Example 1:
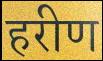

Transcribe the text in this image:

हरीण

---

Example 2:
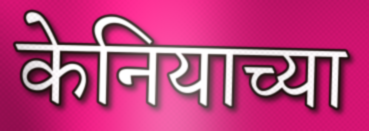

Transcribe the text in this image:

केनियाच्या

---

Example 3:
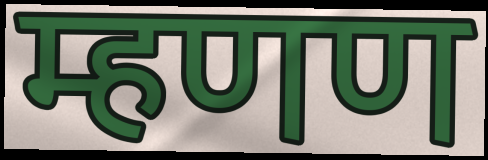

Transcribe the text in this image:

म्हणण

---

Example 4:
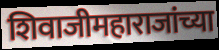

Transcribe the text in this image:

शिवाजीमहाराजांच्या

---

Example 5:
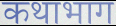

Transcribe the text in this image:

कथाभाग